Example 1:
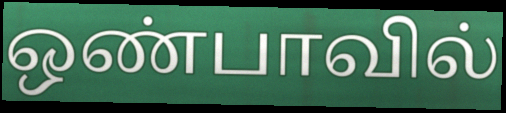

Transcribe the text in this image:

ஒண்பாவில்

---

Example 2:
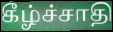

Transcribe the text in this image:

கீழ்ச்சாதி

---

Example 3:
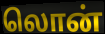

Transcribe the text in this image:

லொன்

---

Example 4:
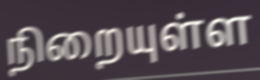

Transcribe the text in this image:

நிறையுள்ள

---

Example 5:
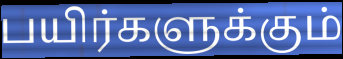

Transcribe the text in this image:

பயிர்களுக்கும்